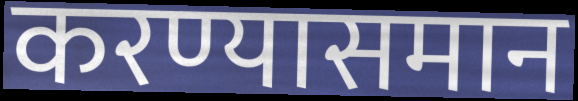
करण्यासमान